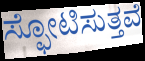
ಸ್ಫೋಟಿಸುತ್ತವೆ